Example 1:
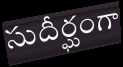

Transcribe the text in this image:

సుదీర్ఘంగా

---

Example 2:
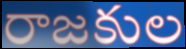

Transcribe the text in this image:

రాజకుల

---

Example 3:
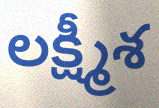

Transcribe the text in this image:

లక్ష్మీశ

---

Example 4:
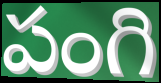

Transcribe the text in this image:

పంగి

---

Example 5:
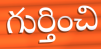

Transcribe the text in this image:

గుర్తించి